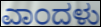
ಎಾಂದಳು